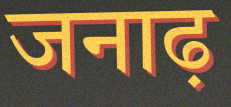
जनाढ़